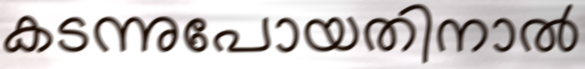
കടന്നുപോയതിനാൽ